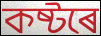
কষ্টৰে